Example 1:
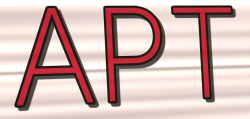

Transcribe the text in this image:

APT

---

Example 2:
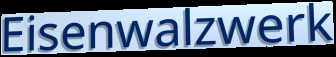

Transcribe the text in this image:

Eisenwalzwerk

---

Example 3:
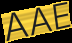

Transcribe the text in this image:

AAE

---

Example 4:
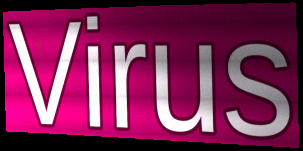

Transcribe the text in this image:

Virus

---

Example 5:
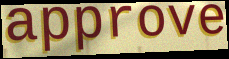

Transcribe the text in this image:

approve